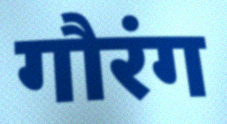
गौरंग